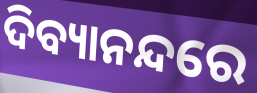
ଦିବ୍ୟାନନ୍ଦରେ